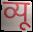
व्यू